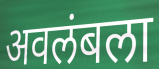
अवलंबला